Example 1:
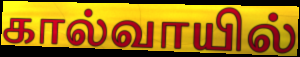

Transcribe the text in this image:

கால்வாயில்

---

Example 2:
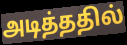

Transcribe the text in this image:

அடித்ததில்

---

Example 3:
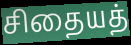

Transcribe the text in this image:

சிதையத்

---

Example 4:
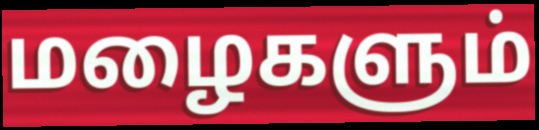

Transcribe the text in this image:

மழைகளும்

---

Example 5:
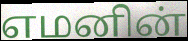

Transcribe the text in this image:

எமனின்